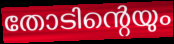
തോടിന്റെയും